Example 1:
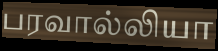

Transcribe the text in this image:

பரவால்லியா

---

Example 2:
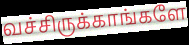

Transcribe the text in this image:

வச்சிருக்காங்களே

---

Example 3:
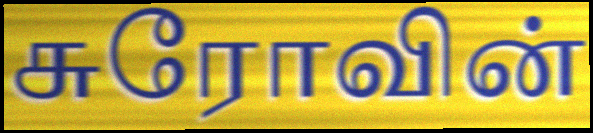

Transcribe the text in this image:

சுரோவின்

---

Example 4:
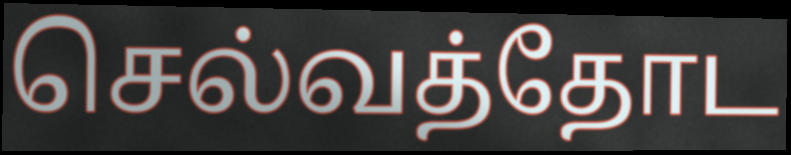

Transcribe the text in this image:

செல்வத்தோட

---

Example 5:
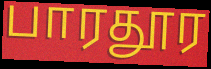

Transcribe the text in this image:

பாரதூர